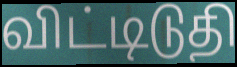
விட்டிடுதி